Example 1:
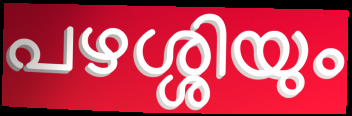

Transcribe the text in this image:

പഴശ്ശിയും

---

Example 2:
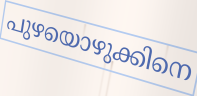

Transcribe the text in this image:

പുഴയൊഴുക്കിനെ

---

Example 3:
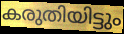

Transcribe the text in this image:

കരുതിയിട്ടും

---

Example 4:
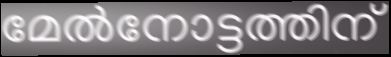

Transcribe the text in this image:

മേൽനോട്ടത്തിന്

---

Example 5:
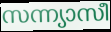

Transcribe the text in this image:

സന്ന്യാസീ